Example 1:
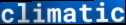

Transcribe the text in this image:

climatic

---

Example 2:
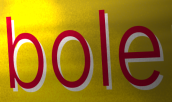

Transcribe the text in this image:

bole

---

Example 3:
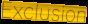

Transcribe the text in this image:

Exclusion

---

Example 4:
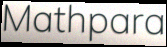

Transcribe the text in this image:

Mathpara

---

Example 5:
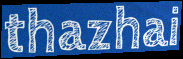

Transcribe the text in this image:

thazhai